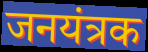
जनयंत्रक